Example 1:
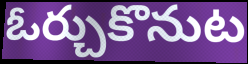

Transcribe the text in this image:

ఓర్చుకొనుట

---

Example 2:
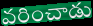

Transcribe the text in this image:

వరించాడు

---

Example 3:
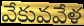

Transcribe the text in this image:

వేకువవేళ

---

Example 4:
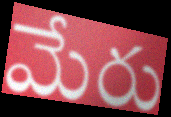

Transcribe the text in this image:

మేరు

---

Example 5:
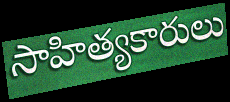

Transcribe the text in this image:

సాహిత్యకారులు